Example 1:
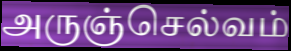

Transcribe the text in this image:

அருஞ்செல்வம்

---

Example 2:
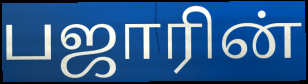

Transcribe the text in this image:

பஜாரின்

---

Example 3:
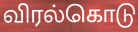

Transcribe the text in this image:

விரல்கொடு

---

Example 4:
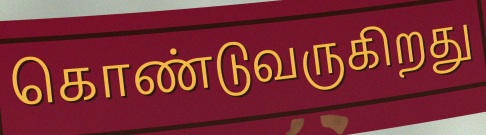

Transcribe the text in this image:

கொண்டுவருகிறது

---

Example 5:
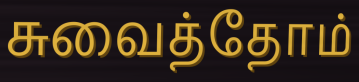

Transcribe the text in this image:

சுவைத்தோம்